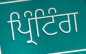
ਪ੍ਰਿੰਟਿੰਗ